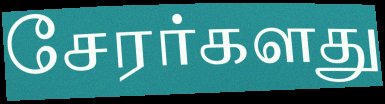
சேரர்களது